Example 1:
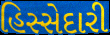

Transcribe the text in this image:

હિસ્સેદારી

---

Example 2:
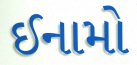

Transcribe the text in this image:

ઈનામો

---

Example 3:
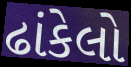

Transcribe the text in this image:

ઢાંકેલો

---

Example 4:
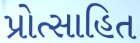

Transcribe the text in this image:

પ્રોત્સાહિત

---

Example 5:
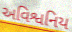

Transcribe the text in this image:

અવિશ્વનિય